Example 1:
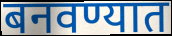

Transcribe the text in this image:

बनवण्यात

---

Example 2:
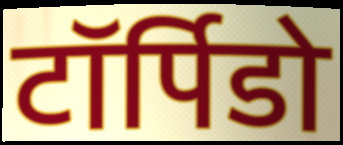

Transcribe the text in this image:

टॉर्पिडो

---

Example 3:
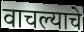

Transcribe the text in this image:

वाचल्याचे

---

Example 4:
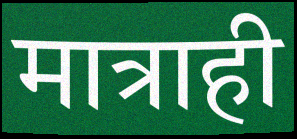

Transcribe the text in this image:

मात्राही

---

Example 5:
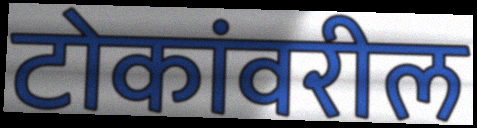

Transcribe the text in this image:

टोकांवरील